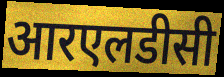
आरएलडीसी